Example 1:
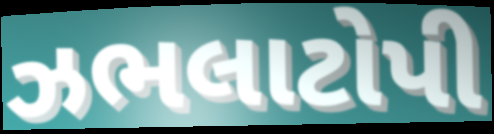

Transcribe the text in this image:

ઝભલાટોપી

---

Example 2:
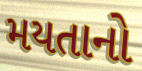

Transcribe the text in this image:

મયતાનો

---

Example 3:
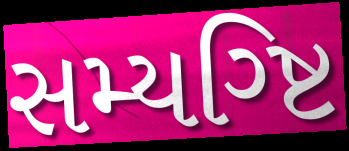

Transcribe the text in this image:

સમ્યગ્ષ્ટિ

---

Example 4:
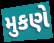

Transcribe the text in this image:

મુકણે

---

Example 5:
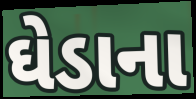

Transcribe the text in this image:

ઘેડાના